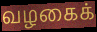
வழகைக்